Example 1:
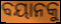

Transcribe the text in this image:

ବୟାନକୁ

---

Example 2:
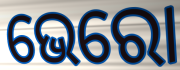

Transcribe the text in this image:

ଭେରୋ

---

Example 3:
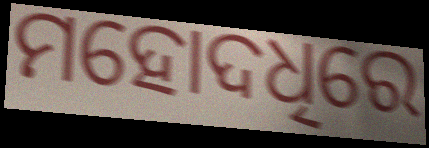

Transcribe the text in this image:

ମହୋଦଧିରେ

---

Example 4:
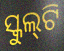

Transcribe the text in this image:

ସ୍କୁଲ୍‌ଟି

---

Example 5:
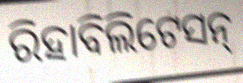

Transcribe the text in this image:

ରିହାବିଲିଟେସନ୍